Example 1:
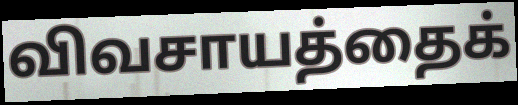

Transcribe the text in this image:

விவசாயத்தைக்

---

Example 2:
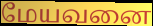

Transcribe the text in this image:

மேயவனை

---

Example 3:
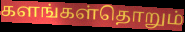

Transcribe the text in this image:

களங்கள்தொறும்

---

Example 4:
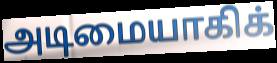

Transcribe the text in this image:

அடிமையாகிக்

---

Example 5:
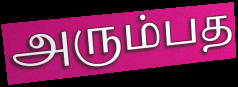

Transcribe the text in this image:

அரும்பத